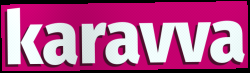
karavva